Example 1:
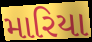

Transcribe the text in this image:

મારિયા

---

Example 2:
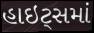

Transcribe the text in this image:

હાઇટ્સમાં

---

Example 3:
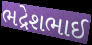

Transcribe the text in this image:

ભદ્રેશભાઈ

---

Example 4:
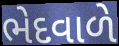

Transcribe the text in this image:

ભેદવાળે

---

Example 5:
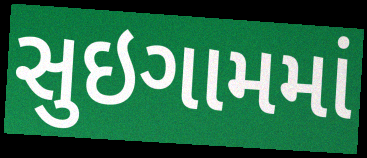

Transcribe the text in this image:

સુઇગામમાં